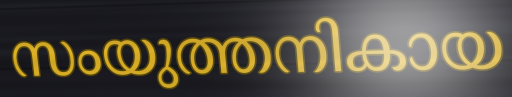
സംയുത്തനികായ